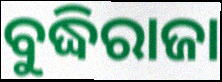
ବୁଦ୍ଧିରାଜା